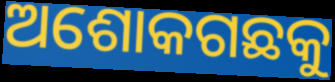
ଅଶୋକଗଛକୁ